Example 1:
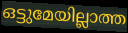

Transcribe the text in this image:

ഒട്ടുമേയില്ലാത്ത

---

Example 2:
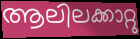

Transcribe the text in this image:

ആലിലക്കാറ്റു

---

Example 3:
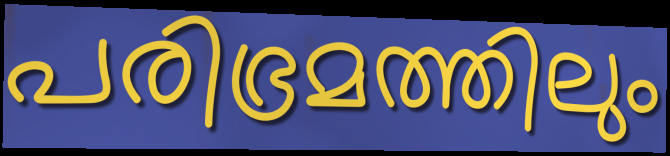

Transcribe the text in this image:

പരിഭ്രമത്തിലും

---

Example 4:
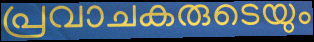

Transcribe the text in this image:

പ്രവാചകരുടെയും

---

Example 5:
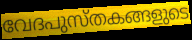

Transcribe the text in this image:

വേദപുസ്തകങ്ങളുടെ